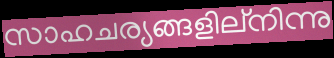
സാഹചര്യങ്ങളില്നിന്നു